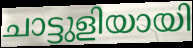
ചാട്ടുളിയായി